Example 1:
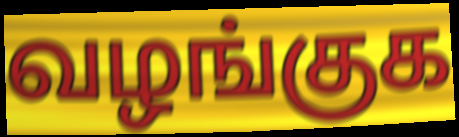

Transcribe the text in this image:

வழங்குக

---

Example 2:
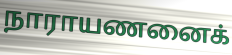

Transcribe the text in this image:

நாராயணனைக்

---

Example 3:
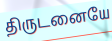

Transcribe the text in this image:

திருடனையே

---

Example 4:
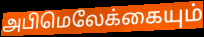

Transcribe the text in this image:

அபிமெலேக்கையும்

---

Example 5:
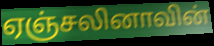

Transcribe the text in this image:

ஏஞ்சலினாவின்